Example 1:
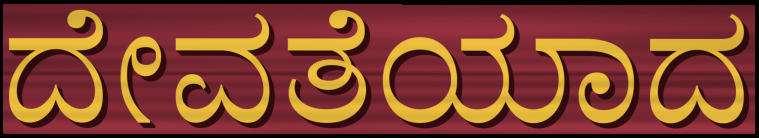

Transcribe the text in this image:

ದೇವತೆಯಾದ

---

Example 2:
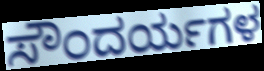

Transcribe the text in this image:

ಸೌಂದರ್ಯಗಳ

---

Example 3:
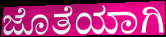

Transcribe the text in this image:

ಜೊತೆಯಾಗಿ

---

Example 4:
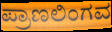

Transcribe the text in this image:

ಪ್ರಾಣಲಿಂಗವ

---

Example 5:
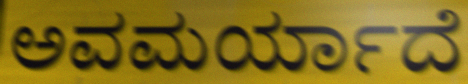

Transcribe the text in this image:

ಅವಮರ್ಯಾದೆ